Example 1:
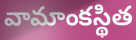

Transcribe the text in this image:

వామాంకస్థిత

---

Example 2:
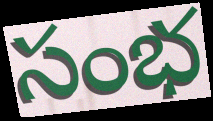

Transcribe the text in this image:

సంభ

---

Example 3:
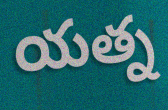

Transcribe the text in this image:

యత్న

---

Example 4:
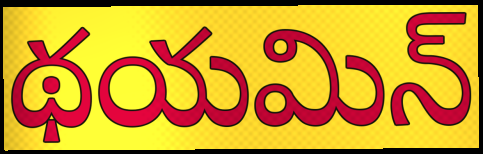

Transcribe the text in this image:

థయమిన్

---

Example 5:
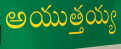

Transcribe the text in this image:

అయుత్తయ్య